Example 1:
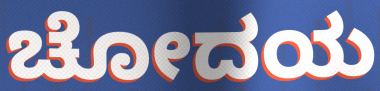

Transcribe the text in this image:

ಚೋದಯ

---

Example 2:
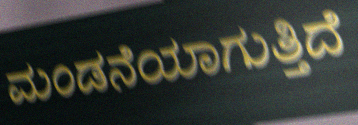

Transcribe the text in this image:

ಮಂಡನೆಯಾಗುತ್ತಿದೆ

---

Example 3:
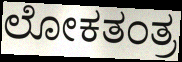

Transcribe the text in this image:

ಲೋಕತಂತ್ರ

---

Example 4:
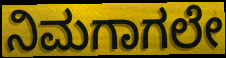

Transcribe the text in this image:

ನಿಮಗಾಗಲೇ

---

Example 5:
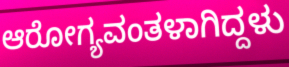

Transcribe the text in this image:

ಆರೋಗ್ಯವಂತಳಾಗಿದ್ದಳು